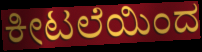
ಕೀಟಲೆಯಿಂದ